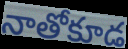
నాతోకూడ